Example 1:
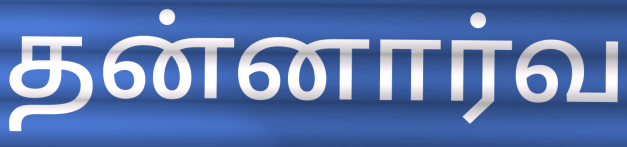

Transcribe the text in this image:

தன்னார்வ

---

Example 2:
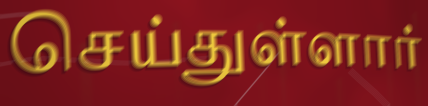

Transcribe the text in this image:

செய்துள்ளார்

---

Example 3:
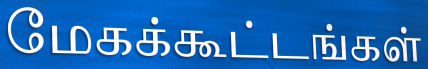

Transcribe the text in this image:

மேகக்கூட்டங்கள்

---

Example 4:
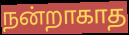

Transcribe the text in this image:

நன்றாகாத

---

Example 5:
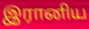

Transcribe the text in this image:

இரானிய